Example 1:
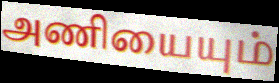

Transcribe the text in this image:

அணியையும்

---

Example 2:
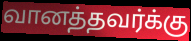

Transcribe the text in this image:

வானத்தவர்க்கு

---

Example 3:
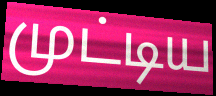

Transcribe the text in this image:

முட்டிய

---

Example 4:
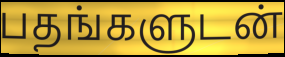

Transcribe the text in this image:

பதங்களுடன்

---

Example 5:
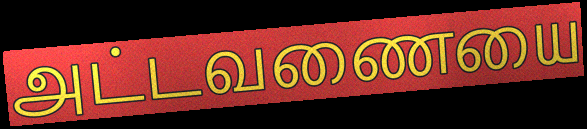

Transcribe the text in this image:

அட்டவணையை